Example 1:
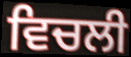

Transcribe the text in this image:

ਵਿਚਲੀ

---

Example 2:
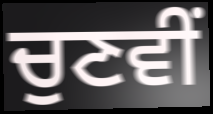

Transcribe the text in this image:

ਚੁਣਵੀਂ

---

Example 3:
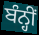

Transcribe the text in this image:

ਬੰਨ੍ਹੀਂ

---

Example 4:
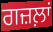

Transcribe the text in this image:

ਗਜ਼ਲ਼ਾਂ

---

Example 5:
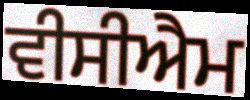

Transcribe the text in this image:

ਵੀਸੀਐਮ